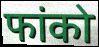
फांको